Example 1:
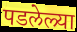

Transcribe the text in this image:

पडलेल्या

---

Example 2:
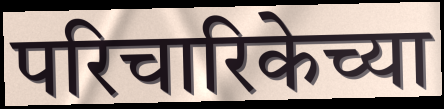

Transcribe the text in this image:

परिचारिकेच्या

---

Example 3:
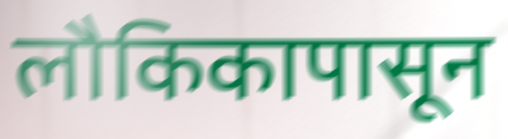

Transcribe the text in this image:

लौकिकापासून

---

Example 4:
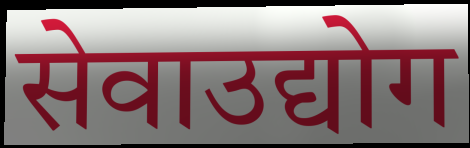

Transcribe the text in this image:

सेवाउद्योग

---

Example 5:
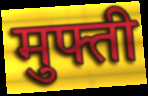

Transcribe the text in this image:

मुफ्ती